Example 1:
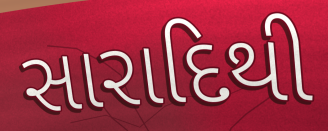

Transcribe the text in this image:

સારાદિથી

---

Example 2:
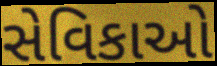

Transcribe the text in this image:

સેવિકાઓ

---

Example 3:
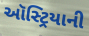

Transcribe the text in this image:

ઑસ્ટ્રિયાની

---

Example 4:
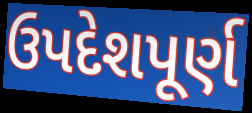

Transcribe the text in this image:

ઉપદેશપૂર્ણ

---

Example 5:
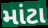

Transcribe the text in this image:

માંટા